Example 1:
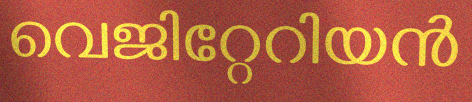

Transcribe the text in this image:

വെജിറ്റേറിയൻ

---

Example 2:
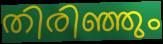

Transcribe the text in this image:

തിരിഞ്ഞും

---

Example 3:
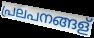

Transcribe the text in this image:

പ്രലപനങ്ങള്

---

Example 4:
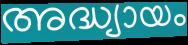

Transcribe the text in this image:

അദ്ധ്യായം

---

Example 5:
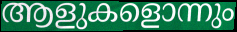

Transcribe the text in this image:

ആളുകളൊന്നും